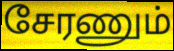
சேரணும்